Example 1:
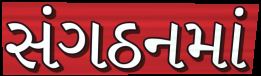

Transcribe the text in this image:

સંગઠનમાં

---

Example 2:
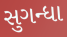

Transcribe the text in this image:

સુગન્ધા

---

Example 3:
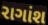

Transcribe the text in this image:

રાગાંશ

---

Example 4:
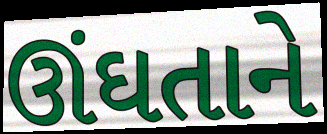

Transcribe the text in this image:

ઊંઘતાને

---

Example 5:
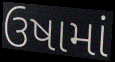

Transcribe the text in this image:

ઉષામાં